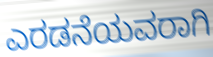
ಎರಡನೆಯವರಾಗಿ